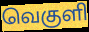
வெகுளி